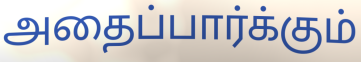
அதைப்பார்க்கும்